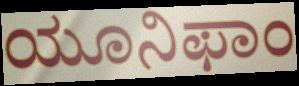
ಯೂನಿಫಾಂ